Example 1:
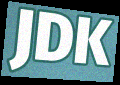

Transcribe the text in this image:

JDK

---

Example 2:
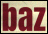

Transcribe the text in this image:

baz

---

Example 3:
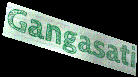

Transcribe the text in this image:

Gangasati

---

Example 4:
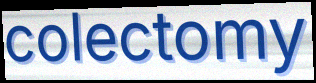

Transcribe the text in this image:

colectomy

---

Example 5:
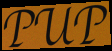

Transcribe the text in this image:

PUP